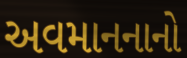
અવમાનનાનો